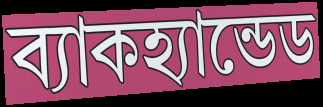
ব্যাকহ্যান্ডেড